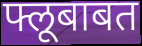
फ्लूबाबत